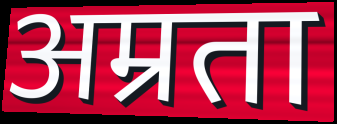
अम्रता